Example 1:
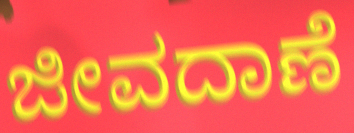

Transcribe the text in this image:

ಜೀವದಾಣೆ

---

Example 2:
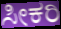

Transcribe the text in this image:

ಸೀಕರಿ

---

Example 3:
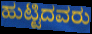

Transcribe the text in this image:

ಹುಟ್ಟಿದವರು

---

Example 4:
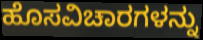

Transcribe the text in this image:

ಹೊಸವಿಚಾರಗಳನ್ನು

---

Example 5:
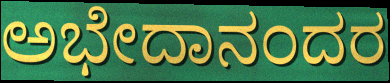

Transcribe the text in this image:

ಅಭೇದಾನಂದರ